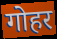
गोहर